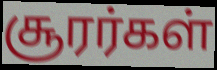
சூரர்கள்